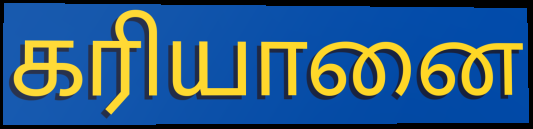
கரியானை